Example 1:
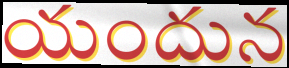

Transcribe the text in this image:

యందున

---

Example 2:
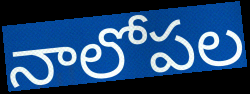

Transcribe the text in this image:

నాలోపల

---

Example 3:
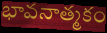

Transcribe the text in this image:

భావనాత్మకం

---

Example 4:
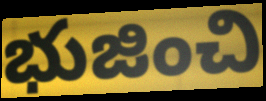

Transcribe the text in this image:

భుజించి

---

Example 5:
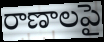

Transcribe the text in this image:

రాణాలపై